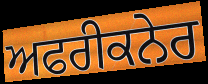
ਅਫਰੀਕਨੇਰ